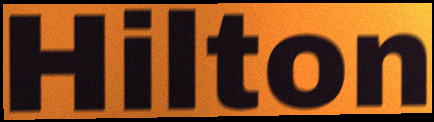
Hilton